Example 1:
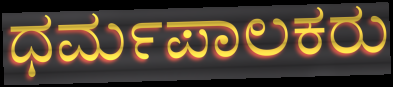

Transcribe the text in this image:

ಧರ್ಮಪಾಲಕರು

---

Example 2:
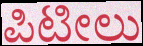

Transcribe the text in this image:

ಪಿಟೀಲು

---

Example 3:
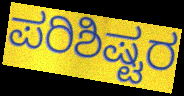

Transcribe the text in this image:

ಪರಿಶಿಷ್ಟರ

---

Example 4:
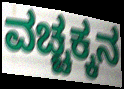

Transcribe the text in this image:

ವಚ್ಚಕ್ಕನ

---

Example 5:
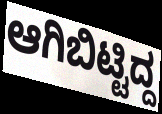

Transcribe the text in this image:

ಆಗಿಬಿಟ್ಟಿದ್ದ